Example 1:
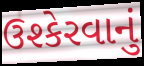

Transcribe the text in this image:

ઉશ્કેરવાનું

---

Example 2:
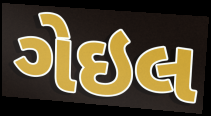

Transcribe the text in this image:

ગેઇલ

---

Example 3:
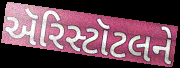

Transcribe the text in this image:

ઍરિસ્ટૉટલને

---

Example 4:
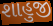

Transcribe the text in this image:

શાહુજી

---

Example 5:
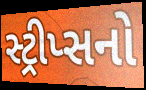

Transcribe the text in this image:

સ્ટ્રીપ્સનો